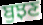
ਬੁਝਣ